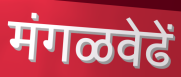
मंगळवेढें